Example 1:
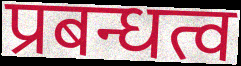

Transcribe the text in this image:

प्रबन्धत्व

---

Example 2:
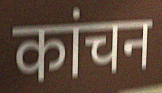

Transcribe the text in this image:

कांचन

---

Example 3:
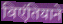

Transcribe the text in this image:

विएंतियाने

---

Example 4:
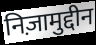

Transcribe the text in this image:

निज़ामुद्दीन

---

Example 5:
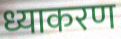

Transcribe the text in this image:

ध्याकरण